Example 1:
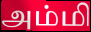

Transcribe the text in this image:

அம்மி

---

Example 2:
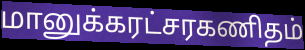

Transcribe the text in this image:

மானுக்கரட்சரகணிதம்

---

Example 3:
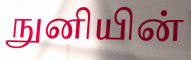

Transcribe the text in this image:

நுனியின்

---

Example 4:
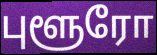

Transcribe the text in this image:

புளூரோ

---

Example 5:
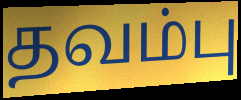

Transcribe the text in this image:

தவம்பு